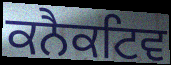
ਕਨੈਕਟਿਵ